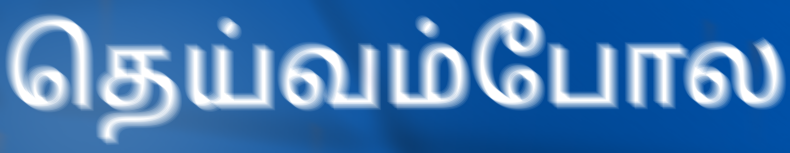
தெய்வம்போல